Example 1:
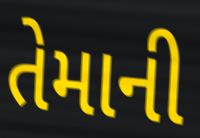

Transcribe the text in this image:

તેમાની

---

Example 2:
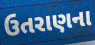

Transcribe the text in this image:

ઉતરાણના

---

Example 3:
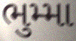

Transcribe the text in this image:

ભુમ્મા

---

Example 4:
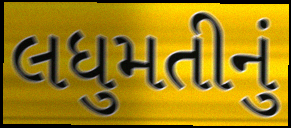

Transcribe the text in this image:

લધુમતીનું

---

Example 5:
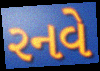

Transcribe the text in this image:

રનવે